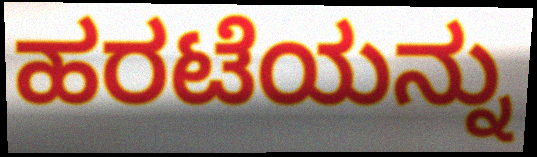
ಹರಟೆಯನ್ನು